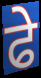
ਫੇ